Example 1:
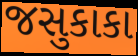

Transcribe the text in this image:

જસુકાકા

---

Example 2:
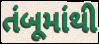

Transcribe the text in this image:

તંબૂમાંથી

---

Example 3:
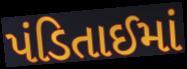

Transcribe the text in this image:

પંડિતાઈમાં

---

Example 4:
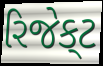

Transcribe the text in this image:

રિજેક્‌ટ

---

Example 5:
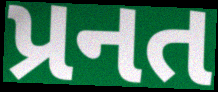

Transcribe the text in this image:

પ્રનત